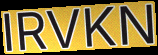
IRVKN